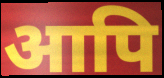
आपि